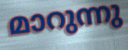
മാറുന്നു